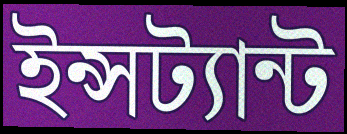
ইন্সট্যান্ট